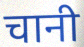
चानी